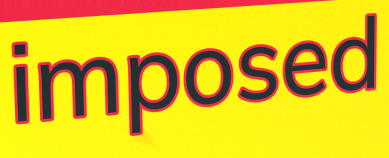
imposed